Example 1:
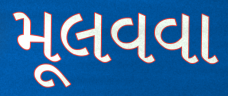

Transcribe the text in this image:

મૂલવવા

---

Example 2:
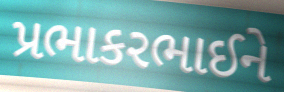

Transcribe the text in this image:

પ્રભાકરભાઈને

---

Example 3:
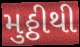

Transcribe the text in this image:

મુઠ્ઠીથી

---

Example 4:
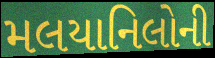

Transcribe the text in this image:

મલયાનિલોની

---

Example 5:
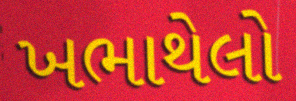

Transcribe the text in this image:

ખભાથેલો